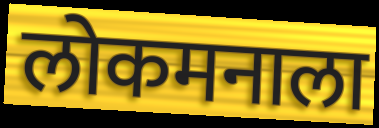
लोकमनाला